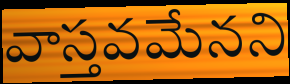
వాస్తవమేనని